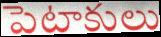
పెటాకులు